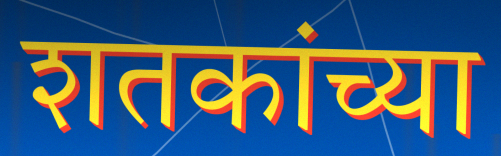
शतकांच्या